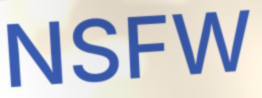
NSFW